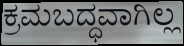
ಕ್ರಮಬದ್ಧವಾಗಿಲ್ಲ